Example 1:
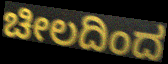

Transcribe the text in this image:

ಚೀಲದಿಂದ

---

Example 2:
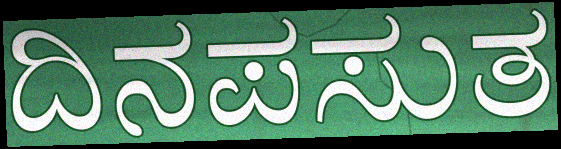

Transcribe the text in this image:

ದಿನಪಸುತ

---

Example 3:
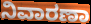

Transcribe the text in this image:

ನಿವಾರಣಾ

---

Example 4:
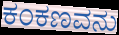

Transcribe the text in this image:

ಕಂಕಣವನು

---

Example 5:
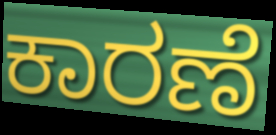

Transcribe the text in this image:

ಕಾರಣೆ